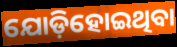
ଯୋଡ଼ିହୋଇଥିବା